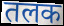
तलक